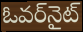
ఓవర్‌నైట్